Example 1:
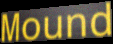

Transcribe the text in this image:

Mound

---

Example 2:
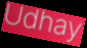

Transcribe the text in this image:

Udhay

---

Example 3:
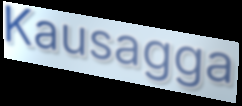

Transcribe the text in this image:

Kausagga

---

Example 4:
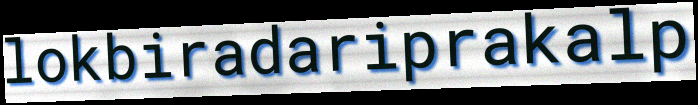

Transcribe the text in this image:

lokbiradariprakalp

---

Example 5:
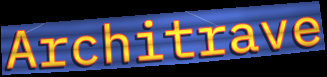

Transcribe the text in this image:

Architrave